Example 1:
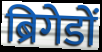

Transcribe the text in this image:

ब्रिगेडों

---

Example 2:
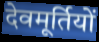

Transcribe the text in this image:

देवमूर्तियों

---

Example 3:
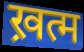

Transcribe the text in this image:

ख़त्‍म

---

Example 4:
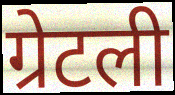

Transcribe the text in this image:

ग्रेटली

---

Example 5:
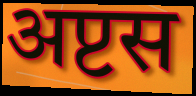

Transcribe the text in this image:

अप्टस